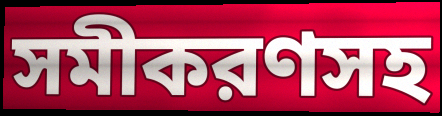
সমীকরণসহ